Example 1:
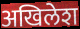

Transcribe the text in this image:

अखिलेश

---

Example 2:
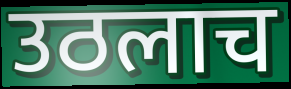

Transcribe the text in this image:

उठलाच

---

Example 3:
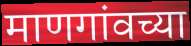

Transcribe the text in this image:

माणगांवच्या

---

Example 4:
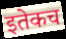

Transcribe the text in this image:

इतेकच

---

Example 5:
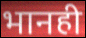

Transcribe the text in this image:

भानही